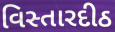
વિસ્તારદીઠ